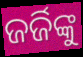
ଜର୍ଜିଙ୍କୁ